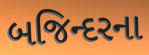
બજિન્દરના